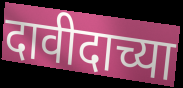
दावीदाच्या